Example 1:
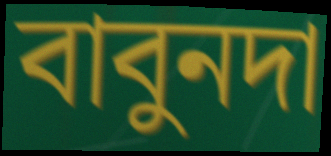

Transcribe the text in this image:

বাবুনদা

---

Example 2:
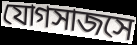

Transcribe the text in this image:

যোগসাজসে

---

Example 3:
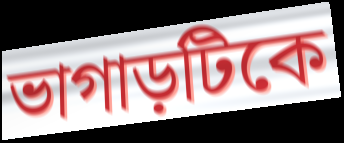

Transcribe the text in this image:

ভাগাড়টিকে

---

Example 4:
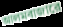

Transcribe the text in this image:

আলমবাজারে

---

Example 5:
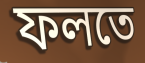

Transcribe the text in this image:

ফলতে